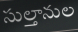
సుల్తానుల